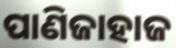
ପାଣିଜାହାଜ